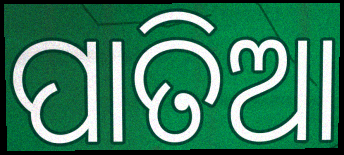
ପାତିଆ